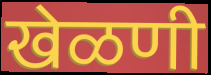
खेळणी